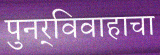
पुनर्विवाहाचा